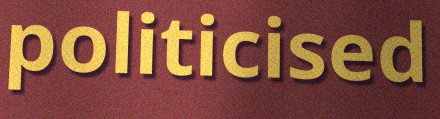
politicised